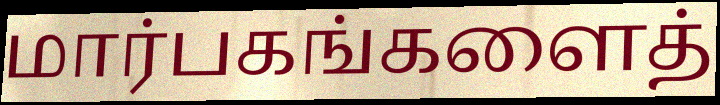
மார்பகங்களைத்